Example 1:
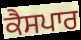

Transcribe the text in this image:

ਕੈਸਪਾਰ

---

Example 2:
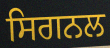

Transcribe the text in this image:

ਸਿਗਨਲ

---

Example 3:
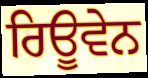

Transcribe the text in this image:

ਰਿਊਵੇਨ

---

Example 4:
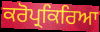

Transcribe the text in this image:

ਕਰੋਪ੍ਰਕਿਰਿਆ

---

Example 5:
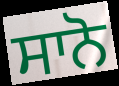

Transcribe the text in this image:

ਸਾਨੋ